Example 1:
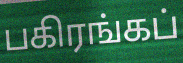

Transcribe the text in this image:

பகிரங்கப்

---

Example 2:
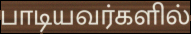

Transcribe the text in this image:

பாடியவர்களில்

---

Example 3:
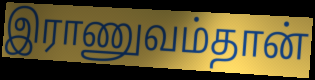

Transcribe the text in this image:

இராணுவம்தான்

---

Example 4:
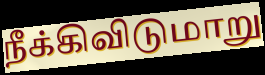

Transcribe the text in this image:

நீக்கிவிடுமாறு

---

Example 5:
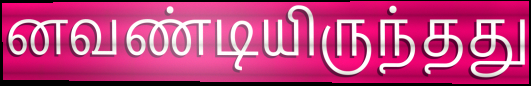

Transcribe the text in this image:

னவண்டியிருந்தது